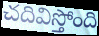
చదివిస్తోంది